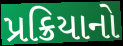
પ્રક્રિયાનો